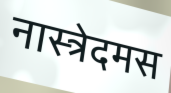
नास्त्रेदमस